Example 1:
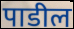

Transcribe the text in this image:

पाडील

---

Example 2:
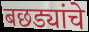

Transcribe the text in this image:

बछड्यांचे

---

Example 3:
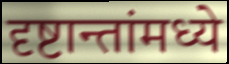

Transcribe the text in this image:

दृष्टान्तांमध्ये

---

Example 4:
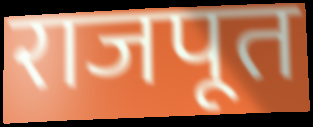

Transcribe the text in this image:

राजपूत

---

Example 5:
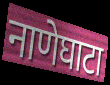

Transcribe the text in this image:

नाणेघाटा